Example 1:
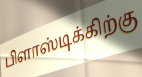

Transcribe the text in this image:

பிளாஸ்டிக்கிற்கு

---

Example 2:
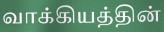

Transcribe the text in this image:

வாக்கியத்தின்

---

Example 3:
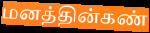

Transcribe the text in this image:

மனத்தின்கண்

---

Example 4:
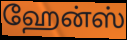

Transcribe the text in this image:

ஹேன்ஸ்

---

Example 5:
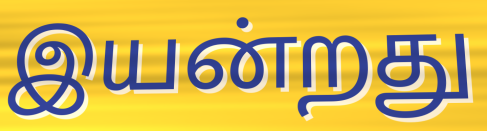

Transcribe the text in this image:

இயன்றது